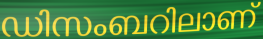
ഡിസംബറിലാണ്